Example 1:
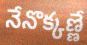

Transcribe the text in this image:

నేనొక్కణ్ణే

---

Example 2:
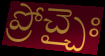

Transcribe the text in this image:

ప్రోచ్చైః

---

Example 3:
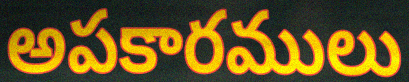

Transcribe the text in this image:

అపకారములు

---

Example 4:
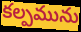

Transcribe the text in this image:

కల్పమును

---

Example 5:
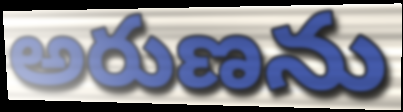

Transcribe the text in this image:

అరుణను